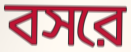
বসরে